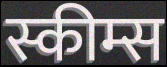
स्‍कीम्‍स